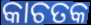
କାଚତକ